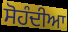
ਸੋਹੰਦੀਆ